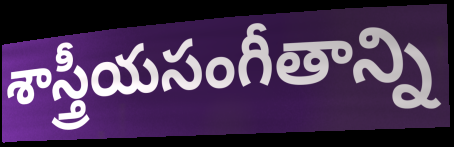
శాస్త్రీయసంగీతాన్ని